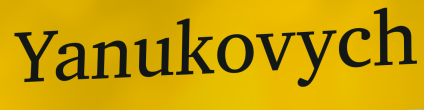
Yanukovych